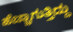
ಹೆಚ್ಚಾಗುತ್ತಿದ್ದು